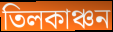
তিলকাঞ্চন